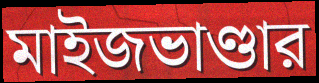
মাইজভাণ্ডার